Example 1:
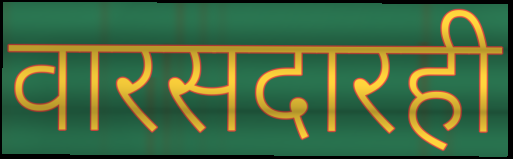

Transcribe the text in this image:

वारसदारही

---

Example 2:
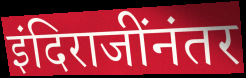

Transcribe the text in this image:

इंदिराजींनंतर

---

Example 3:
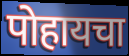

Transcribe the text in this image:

पोहायचा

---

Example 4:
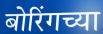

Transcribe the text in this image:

बोरिंगच्या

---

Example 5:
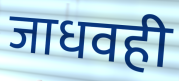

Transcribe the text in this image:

जाधवही